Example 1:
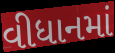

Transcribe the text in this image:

વીધાનમાં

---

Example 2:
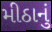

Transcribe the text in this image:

મીઠાનું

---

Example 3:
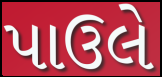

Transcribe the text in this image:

પાઉલે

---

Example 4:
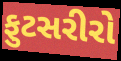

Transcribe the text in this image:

ફુટસરીરો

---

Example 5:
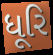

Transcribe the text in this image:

ધૂરિ